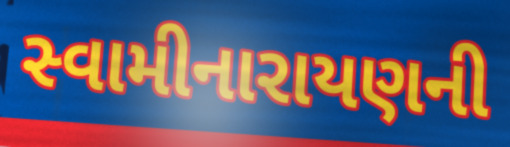
સ્વામીનારાયણની